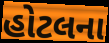
હોટલના